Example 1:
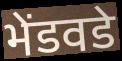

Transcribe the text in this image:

भेंडवडे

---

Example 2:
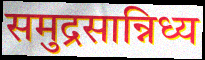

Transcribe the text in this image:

समुद्रसान्निध्य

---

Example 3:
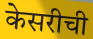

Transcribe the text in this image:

केसरीची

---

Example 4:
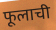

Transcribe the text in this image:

फूलाची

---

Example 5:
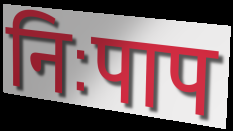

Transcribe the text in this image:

निःपाप